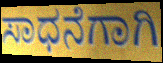
ಸಾಧನೆಗಾಗಿ